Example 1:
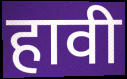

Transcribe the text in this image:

हावी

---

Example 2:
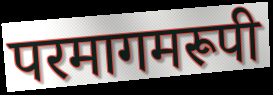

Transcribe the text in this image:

परमागमरूपी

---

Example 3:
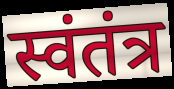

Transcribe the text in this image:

स्वंतंत्र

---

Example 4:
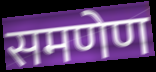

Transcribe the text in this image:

समणेण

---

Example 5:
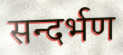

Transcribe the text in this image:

सन्दर्भण